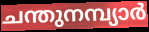
ചന്തുനമ്പ്യാർ